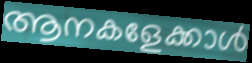
ആനകളേക്കാൾ